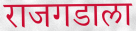
राजगडाला